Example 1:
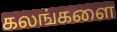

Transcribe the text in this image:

கலங்களை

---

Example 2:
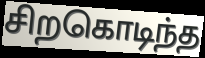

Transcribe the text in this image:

சிறகொடிந்த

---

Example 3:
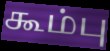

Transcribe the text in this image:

கூம்பு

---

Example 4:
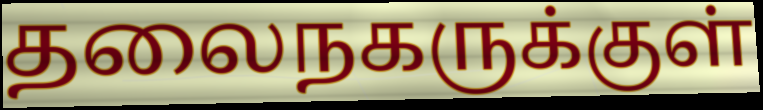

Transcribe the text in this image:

தலைநகருக்குள்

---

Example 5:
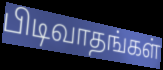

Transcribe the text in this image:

பிடிவாதங்கள்